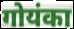
गोयंका